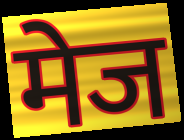
मेज